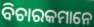
ବିଚାରକମାନେ